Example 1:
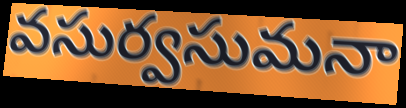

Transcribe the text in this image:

వసుర్వసుమనా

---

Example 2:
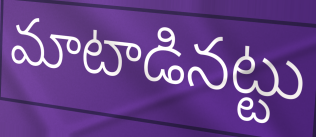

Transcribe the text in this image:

మాటాడినట్టు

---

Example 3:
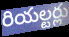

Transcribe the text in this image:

రియల్టర్లు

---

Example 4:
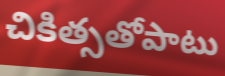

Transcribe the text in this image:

చికిత్సతోపాటు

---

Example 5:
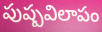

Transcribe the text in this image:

పుష్పవిలాపం